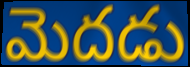
మెదడు